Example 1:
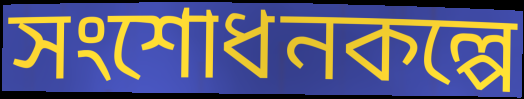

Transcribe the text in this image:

সংশোধনকল্পে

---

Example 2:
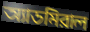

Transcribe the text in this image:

অ্যাডমিরাল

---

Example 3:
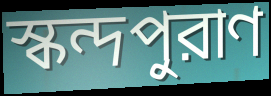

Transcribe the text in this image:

স্কন্দপুরাণ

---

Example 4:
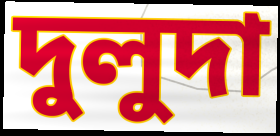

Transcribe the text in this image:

দুলুদা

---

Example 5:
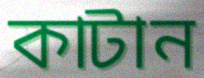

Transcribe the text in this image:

কাটান